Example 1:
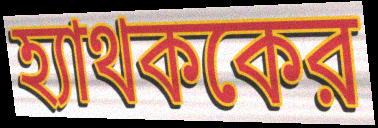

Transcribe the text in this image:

হ্যাথককের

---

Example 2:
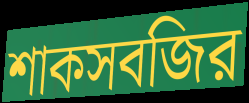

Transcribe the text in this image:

শাকসবজির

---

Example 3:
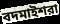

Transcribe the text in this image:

বদমাইশরা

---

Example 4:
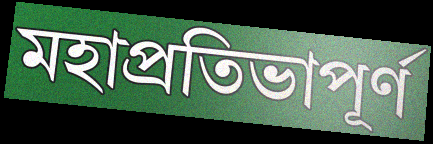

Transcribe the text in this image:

মহাপ্রতিভাপূর্ণ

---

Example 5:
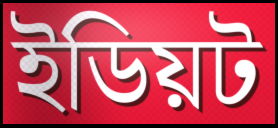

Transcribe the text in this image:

ইডিয়ট